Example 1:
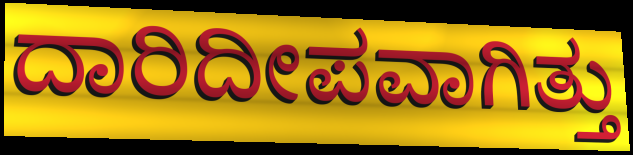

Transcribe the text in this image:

ದಾರಿದೀಪವಾಗಿತ್ತು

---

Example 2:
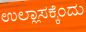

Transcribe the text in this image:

ಉಲ್ಲಾಸಕ್ಕೆಂದು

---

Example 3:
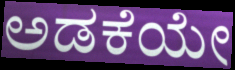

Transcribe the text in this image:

ಅಡಕೆಯೇ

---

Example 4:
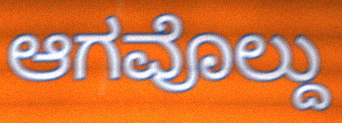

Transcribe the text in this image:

ಆಗವೊಲ್ದು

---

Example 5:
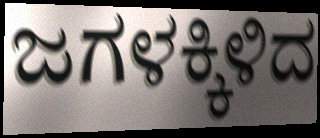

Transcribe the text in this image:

ಜಗಳಕ್ಕಿಳಿದ